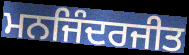
ਮਨਜਿੰਦਰਜੀਤ